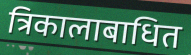
त्रिकालाबाधित